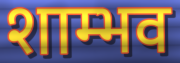
शाम्भव